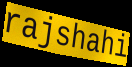
rajshahi